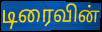
டிரைவின்